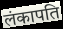
लंकापति